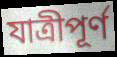
যাত্রীপূর্ণ